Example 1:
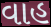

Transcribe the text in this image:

વાહ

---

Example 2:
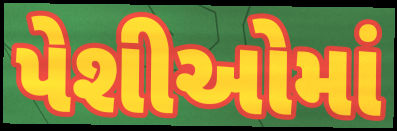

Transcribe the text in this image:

પેશીઓમાં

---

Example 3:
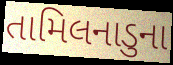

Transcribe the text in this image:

તામિલનાડુના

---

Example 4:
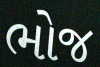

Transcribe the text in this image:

ભોજ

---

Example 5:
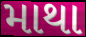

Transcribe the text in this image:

માથા